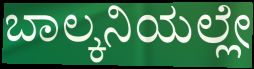
ಬಾಲ್ಕನಿಯಲ್ಲೇ